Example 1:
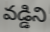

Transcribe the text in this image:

వడ్డిని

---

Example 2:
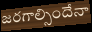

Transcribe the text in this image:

జరగాల్సిందేనా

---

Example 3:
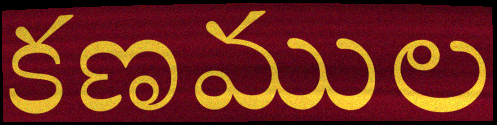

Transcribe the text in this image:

కణముల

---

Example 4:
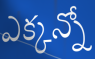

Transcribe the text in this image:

ఎక్కన్నో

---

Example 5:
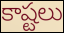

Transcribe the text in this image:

కాష్టలు